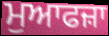
ਮੁਆਫਜ਼ਾ